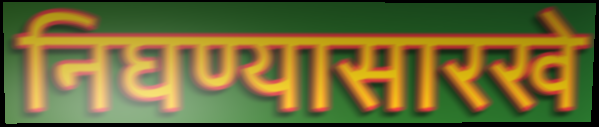
निघण्यासारखे